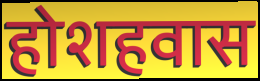
होशहवास